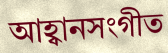
আহ্বানসংগীত